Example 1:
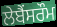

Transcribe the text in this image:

ਲੇਬੈਂਸਰੌਮ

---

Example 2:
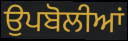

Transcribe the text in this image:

ਉਪਬੋਲੀਆਂ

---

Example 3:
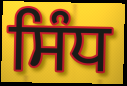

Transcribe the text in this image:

ਸਿੰਧ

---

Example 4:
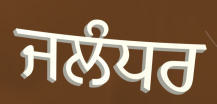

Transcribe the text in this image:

ਜਲੰਧਰ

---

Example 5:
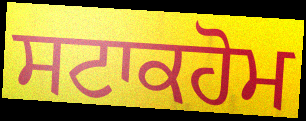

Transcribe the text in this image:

ਸਟਾਕਹੋਮ